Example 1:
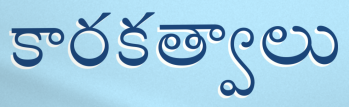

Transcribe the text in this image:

కారకత్వాలు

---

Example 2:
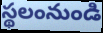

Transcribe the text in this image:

స్థలంనుండి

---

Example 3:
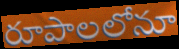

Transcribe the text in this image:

రూపాలలోనూ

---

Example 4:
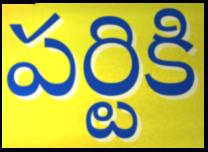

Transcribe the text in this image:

పర్టికి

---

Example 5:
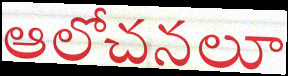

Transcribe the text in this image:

ఆలోచనలూ